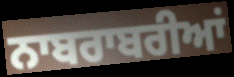
ਨਾਬਰਾਬਰੀਆਂ